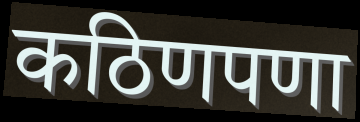
कठिणपणा